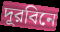
দূরবিনে